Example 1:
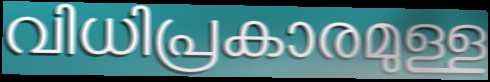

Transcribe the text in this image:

വിധിപ്രകാരമുള്ള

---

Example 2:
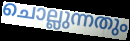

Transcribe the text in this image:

ചൊല്ലുന്നതും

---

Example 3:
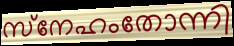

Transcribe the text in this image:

സ്‌നേഹംതോന്നി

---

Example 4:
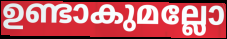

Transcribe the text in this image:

ഉണ്ടാകുമല്ലോ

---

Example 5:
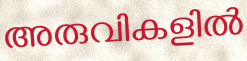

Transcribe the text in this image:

അരുവികളിൽ